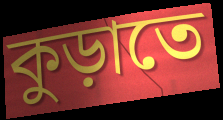
কুড়াতে